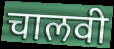
चालवी